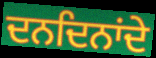
ਦਨਦਿਨਾਂਦੇ